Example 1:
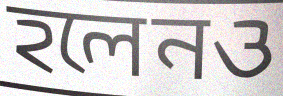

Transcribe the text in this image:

হলেনও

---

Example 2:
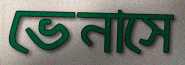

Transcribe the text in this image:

ভেনাসে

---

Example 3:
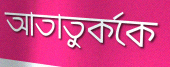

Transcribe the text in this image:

আতাতুর্ককে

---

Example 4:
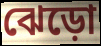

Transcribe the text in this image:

ঝেড়ো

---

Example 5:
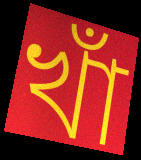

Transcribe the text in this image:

খাঁ